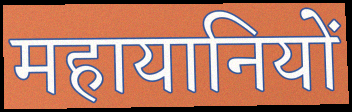
महायानियों